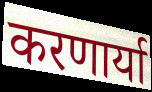
करणार्या